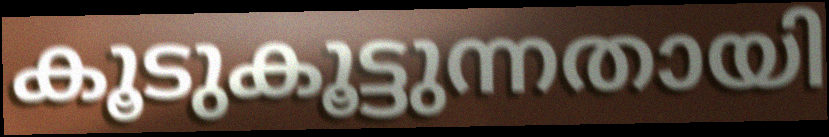
കൂടുകൂട്ടുന്നതായി